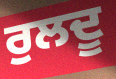
ਰੁਲਦੂ